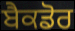
ਬੈਕਡੋਰ